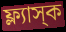
ফ্ল্যাস্‌ক